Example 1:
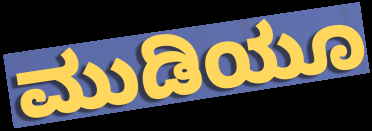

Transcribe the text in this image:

ಮುಡಿಯೂ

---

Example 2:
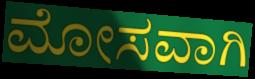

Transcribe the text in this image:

ಮೋಸವಾಗಿ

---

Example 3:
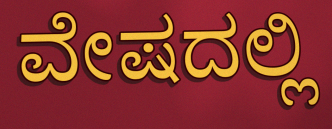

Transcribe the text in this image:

ವೇಷದಲ್ಲಿ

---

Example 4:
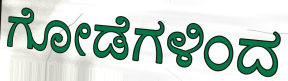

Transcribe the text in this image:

ಗೋಡೆಗಳಿಂದ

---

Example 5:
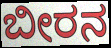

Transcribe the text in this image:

ಬೀರನ